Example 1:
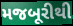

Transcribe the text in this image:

મજબૂરીથી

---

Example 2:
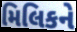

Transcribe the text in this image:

મિલિકને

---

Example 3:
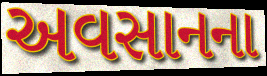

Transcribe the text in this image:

અવસાનના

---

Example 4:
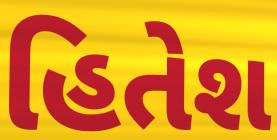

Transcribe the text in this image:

હિતેશ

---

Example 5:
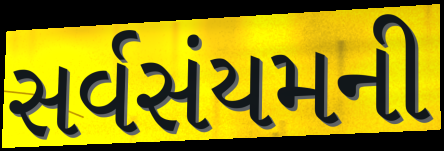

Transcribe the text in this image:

સર્વસંયમની